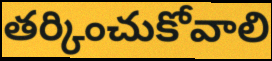
తర్కించుకోవాలి